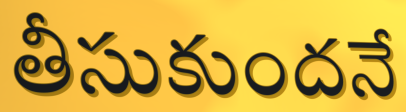
తీసుకుందనే